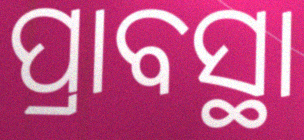
ପ୍ରାବସ୍ଥା